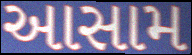
આસામ